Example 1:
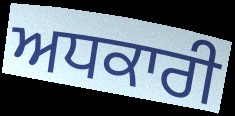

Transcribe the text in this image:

ਅਧਕਾਰੀ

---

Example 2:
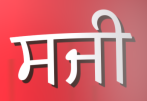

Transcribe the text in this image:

ਸਜੀ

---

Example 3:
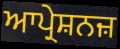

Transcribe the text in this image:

ਆਪ੍ਰੇਸ਼ਨਜ਼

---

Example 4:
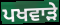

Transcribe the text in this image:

ਪਖਵਾੜੇ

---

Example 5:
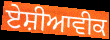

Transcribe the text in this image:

ਏਸ਼ੀਆਵੀਕ